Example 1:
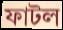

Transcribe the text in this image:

ফাটল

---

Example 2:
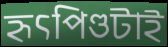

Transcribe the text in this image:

হৃৎপিণ্ডটাই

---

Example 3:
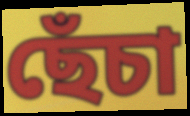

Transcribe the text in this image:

ছেঁচা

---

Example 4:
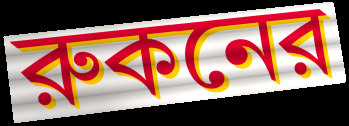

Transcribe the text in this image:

রুকনের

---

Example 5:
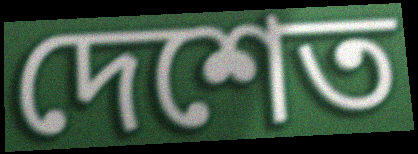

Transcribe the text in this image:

দেশেত